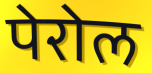
पेरोल